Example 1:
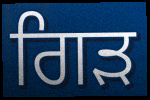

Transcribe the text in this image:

ਗਿੜ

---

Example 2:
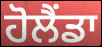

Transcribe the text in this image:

ਹੋਲੈਂਡਾ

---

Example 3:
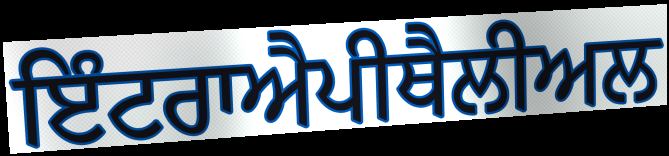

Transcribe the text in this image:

ਇੰਟਰਾਐਪੀਥੈਲੀਅਲ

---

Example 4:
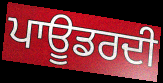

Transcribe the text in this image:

ਪਾਊਡਰਦੀ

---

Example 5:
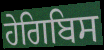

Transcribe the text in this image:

ਹੇਗਿਬਿਸ